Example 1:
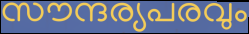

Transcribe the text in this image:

സൗന്ദര്യപരവും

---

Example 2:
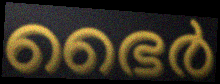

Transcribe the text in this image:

ഭൈർ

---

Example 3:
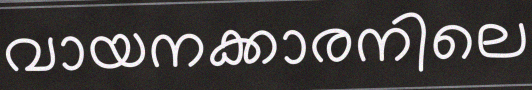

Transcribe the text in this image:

വായനക്കാരനിലെ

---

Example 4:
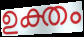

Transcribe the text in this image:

ഉക്തം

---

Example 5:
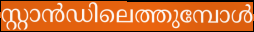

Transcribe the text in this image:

സ്റ്റാൻഡിലെത്തുമ്പോൾ